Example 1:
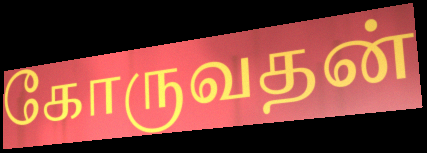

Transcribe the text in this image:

கோருவதன்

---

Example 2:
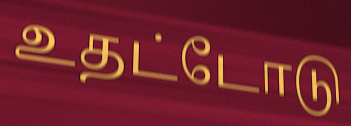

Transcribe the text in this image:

உதட்டோடு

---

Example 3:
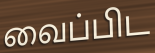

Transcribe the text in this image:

வைப்பிட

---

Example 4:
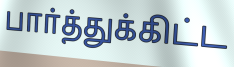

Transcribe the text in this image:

பார்த்துக்கிட்ட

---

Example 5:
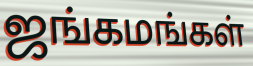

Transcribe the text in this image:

ஜங்கமங்கள்